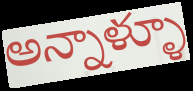
అన్నాళ్ళూ